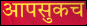
आपसुकच